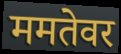
ममतेवर